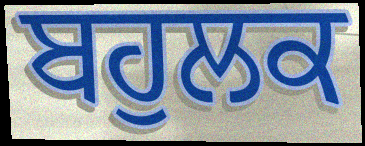
ਬਹੁਲਕ